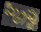
స్క్రిప్టు